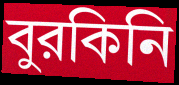
বুরকিনি